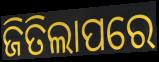
ଜିତିଲାପରେ